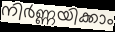
നിർണ്ണയിക്കാം